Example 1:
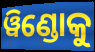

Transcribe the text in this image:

ୱିଣ୍ଡୋକୁ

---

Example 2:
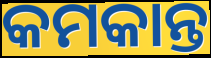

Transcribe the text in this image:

କମକାନ୍ତ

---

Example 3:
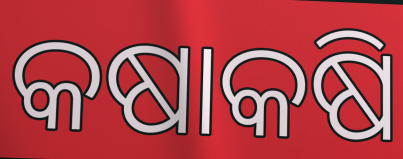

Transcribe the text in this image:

କଷାକଷି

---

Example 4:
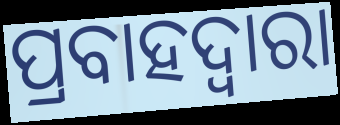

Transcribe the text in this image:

ପ୍ରବାହଦ୍ୱାରା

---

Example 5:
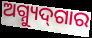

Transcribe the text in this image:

ଅଗ୍ନ୍ୟୁଦ୍‌ଗାର